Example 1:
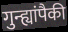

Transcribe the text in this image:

गुन्ह्यांपैकी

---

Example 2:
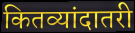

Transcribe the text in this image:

कितव्यांदातरी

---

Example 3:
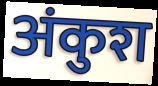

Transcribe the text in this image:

अंकुश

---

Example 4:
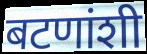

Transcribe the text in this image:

बटणांशी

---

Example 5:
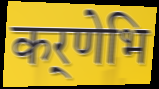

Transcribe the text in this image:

कर्णेभि